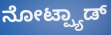
ನೋಟ್ಪ್ಯಾಡ್